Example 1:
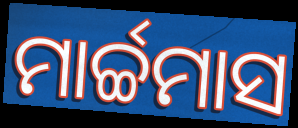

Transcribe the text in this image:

ମାର୍ଚ୍ଚମାସ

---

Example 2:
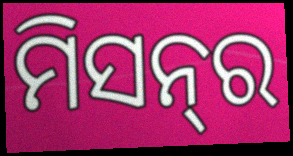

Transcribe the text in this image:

ମିସନ୍‍ର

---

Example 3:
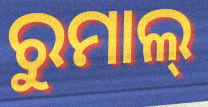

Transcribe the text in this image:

ରୁମାଲ୍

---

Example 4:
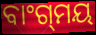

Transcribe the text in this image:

ବାଂଗ୍‌ମୟ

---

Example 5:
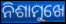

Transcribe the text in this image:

ନିଶାମୁଖେ